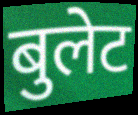
बुलेट